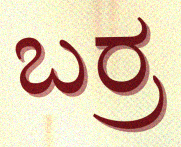
ಬರ್ರ